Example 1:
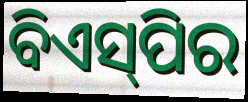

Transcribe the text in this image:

ବିଏସ୍‌ପିର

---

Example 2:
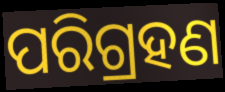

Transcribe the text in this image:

ପରିଗ୍ରହଣ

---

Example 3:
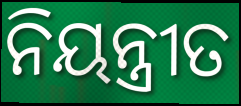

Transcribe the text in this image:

ନିୟନ୍ତ୍ରୀତ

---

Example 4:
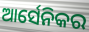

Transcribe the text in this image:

ଆର୍ସେନିକର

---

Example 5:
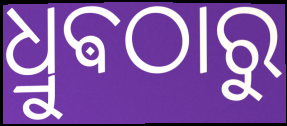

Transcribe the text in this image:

ଧ୍ରୁଵଠାରୁ